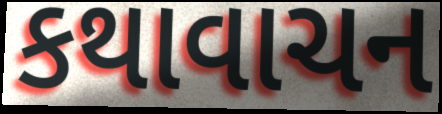
કથાવાચન